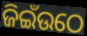
ଜିଇଁଉଠେ